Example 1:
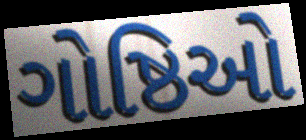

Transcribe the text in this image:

ગોષ્ઠિઓ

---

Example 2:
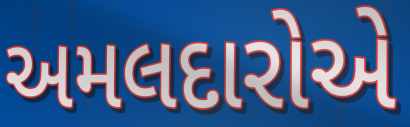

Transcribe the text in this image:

અમલદારોએ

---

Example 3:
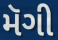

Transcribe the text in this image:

મૅગી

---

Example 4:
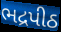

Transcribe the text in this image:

ભદ્રપીઠ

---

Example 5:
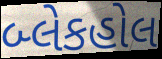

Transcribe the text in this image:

બ્લેકહોલ